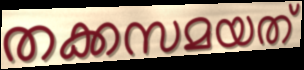
തക്കസമയത്